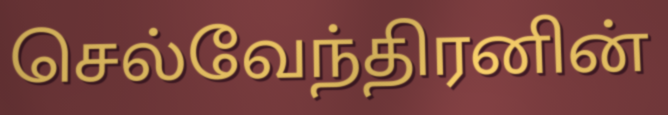
செல்வேந்திரனின்